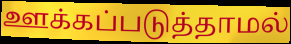
ஊக்கப்படுத்தாமல்